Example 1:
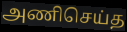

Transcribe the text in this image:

அணிசெய்த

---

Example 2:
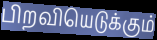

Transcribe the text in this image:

பிறவியெடுக்கும்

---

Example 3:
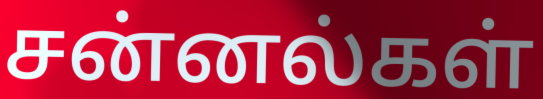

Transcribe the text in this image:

சன்னல்கள்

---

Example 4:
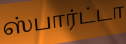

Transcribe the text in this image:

ஸ்பார்ட்டா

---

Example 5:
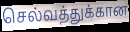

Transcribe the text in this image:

செல்வத்துக்கான